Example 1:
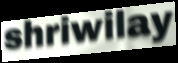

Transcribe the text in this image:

shriwilay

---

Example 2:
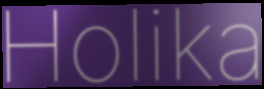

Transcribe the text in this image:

Holika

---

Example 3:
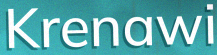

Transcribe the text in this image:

Krenawi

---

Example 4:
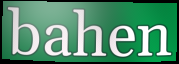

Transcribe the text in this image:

bahen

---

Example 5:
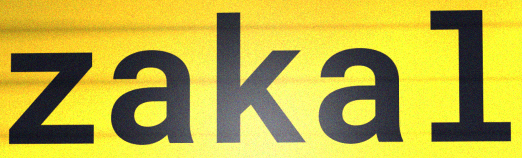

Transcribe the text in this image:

zakal